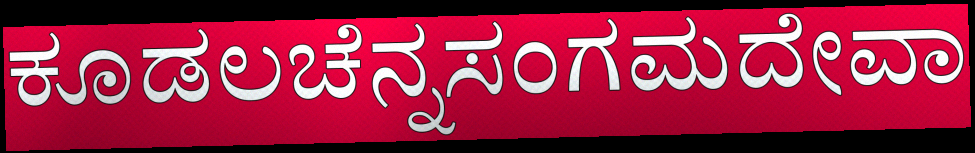
ಕೂಡಲಚೆನ್ನಸಂಗಮದೇವಾ